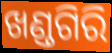
ଖଣ୍ଡଗିରି